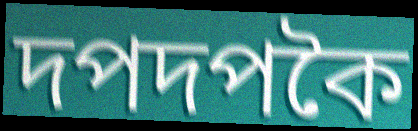
দপদপকৈ